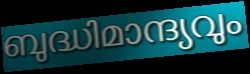
ബുദ്ധിമാന്ദ്യവും